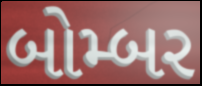
બોમ્બર